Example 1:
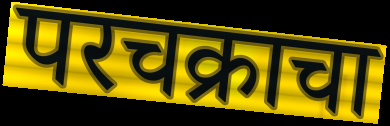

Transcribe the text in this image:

परचक्राचा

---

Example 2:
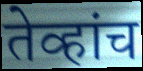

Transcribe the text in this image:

तेव्हांच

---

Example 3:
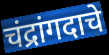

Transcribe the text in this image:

चंद्रांगदाचे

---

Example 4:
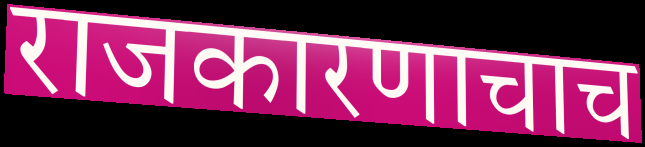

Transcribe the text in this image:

राजकारणाचाच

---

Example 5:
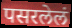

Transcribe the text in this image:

पसरलेलं